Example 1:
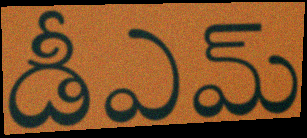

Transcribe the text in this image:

డీఎమ్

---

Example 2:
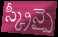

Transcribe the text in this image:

స్క్రీన్పై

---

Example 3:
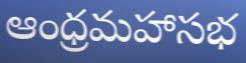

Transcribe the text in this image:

ఆంధ్రమహాసభ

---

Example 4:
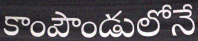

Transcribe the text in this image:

కాంపౌండులోనే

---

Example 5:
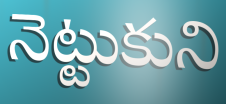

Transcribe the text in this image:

నెట్టుకుని